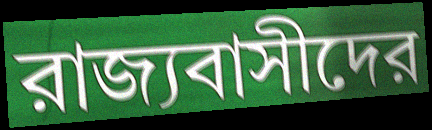
রাজ্যবাসীদের